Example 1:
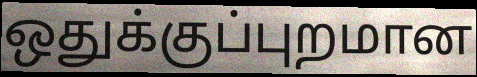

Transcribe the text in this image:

ஒதுக்குப்புறமான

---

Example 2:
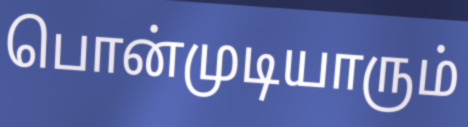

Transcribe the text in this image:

பொன்முடியாரும்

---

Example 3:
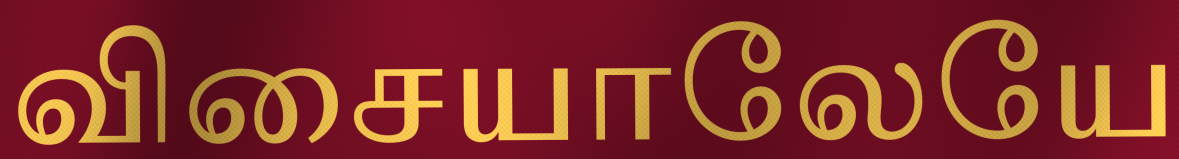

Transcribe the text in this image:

விசையாலேயே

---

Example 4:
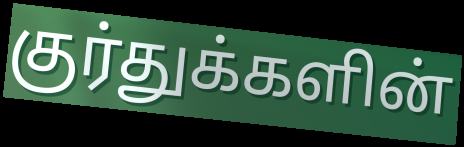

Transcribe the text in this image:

குர்துக்களின்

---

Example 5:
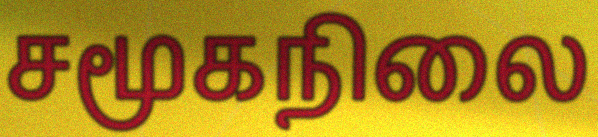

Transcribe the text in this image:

சமூகநிலை